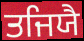
ਤਜਿਯੈ